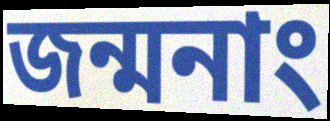
জন্মনাং